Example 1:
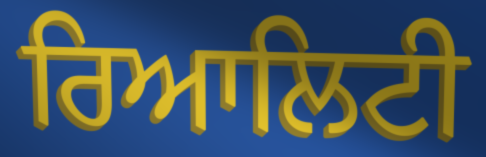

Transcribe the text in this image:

ਰਿਆਲਿਟੀ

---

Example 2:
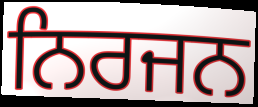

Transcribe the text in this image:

ਨਿਰਜਨ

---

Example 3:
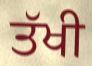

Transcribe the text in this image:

ਤੱਖੀ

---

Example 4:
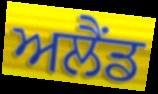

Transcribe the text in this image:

ਅਲੈਂਡ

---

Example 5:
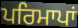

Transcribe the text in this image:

ਪਰਿਮਾਪਾਂ